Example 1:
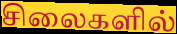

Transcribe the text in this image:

சிலைகளில்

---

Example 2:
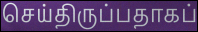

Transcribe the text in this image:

செய்திருப்பதாகப்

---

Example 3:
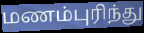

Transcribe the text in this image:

மணம்புரிந்து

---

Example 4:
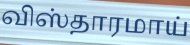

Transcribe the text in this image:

விஸ்தாரமாய்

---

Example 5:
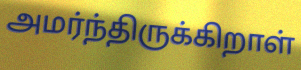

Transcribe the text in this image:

அமர்ந்திருக்கிறாள்